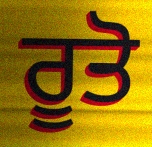
ਰੂਤੋ